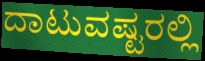
ದಾಟುವಷ್ಟರಲ್ಲಿ